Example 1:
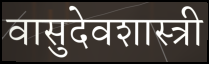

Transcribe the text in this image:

वासुदेवशास्त्री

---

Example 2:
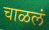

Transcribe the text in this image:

चाळलं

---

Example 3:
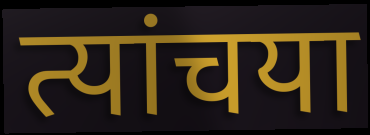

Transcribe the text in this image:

त्यांचया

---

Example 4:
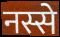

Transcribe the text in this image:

नस्से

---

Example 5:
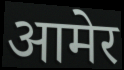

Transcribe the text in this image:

आमेर